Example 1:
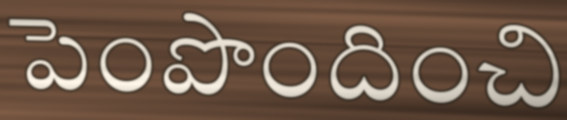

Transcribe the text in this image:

పెంపొందించి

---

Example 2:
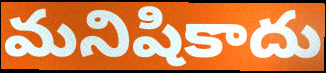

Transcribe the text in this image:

మనిషికాదు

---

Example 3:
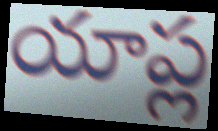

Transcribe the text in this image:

యాప్ల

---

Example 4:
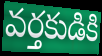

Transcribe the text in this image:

వర్తకుడికి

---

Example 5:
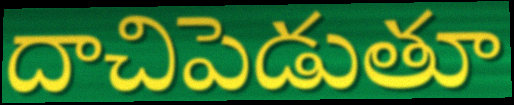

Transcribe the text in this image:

దాచిపెడుతూ